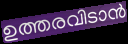
ഉത്തരവിടാൻ